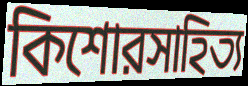
কিশোরসাহিত্য